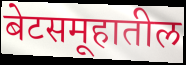
बेटसमूहातील